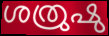
ശത്രുഷു